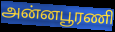
அன்னபூரணி